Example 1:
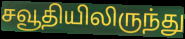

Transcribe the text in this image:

சவூதியிலிருந்து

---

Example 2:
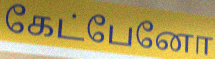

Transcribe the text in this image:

கேட்பேனோ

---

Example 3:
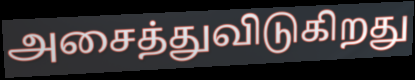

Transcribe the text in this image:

அசைத்துவிடுகிறது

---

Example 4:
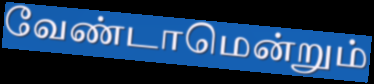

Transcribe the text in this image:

வேண்டாமென்றும்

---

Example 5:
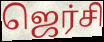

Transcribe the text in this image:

ஜெர்சி